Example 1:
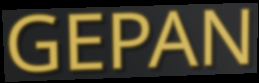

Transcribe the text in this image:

GEPAN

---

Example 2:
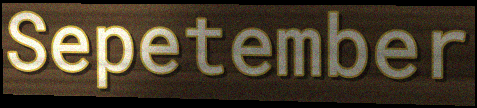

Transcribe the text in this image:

Sepetember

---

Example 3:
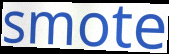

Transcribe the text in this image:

smote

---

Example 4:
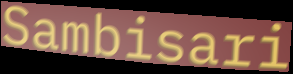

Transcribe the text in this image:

Sambisari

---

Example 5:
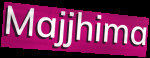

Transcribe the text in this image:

Majjhima